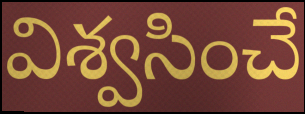
విశ్వసించే